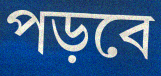
পড়বে